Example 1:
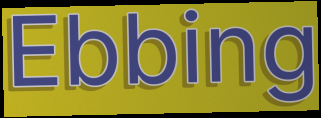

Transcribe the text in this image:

Ebbing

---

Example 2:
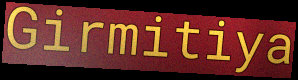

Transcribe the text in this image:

Girmitiya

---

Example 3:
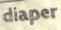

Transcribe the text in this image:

diaper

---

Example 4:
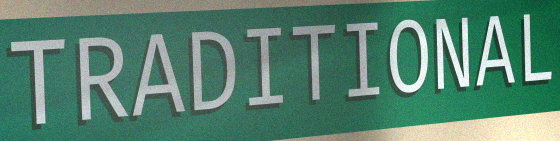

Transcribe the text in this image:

TRADITIONAL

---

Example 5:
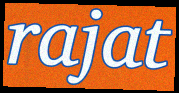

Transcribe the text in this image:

rajat